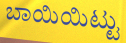
ಬಾಯಿಯಿಟ್ಟು